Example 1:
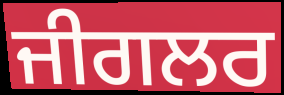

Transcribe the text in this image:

ਜੀਗਲਰ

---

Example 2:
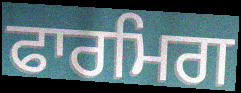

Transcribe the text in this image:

ਫਾਰਮਿਗ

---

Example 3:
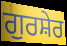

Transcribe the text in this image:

ਗੁਰਸ਼ੇਰ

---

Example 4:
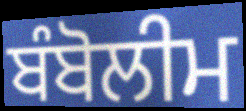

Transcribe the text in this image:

ਬੰਬੋਲੀਮ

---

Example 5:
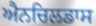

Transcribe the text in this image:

ਐਨਚਿਲਡਾਸ